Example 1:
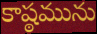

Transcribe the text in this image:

కాష్ఠమును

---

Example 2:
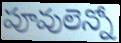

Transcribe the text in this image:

పూవులెన్నో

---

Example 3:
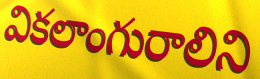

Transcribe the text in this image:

వికలాంగురాలిని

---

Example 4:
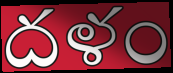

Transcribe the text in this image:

దళం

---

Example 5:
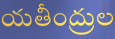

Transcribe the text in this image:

యతీంద్రుల